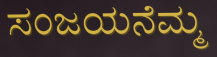
ಸಂಜಯನೆಮ್ಮ